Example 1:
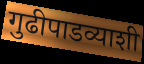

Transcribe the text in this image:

गुढीपाडव्याशी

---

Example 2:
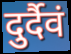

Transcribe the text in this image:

दुर्दैवं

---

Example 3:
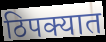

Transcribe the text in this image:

ठिपक्यात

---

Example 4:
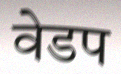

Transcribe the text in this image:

वेडप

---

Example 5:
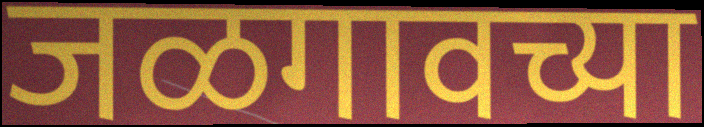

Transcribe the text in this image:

जळगावच्या